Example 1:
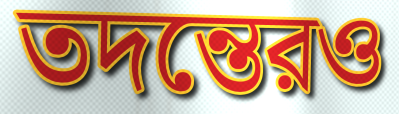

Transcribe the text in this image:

তদন্তেরও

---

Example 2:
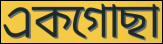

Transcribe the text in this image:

একগোছা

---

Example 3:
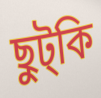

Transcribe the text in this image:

ছুট্কি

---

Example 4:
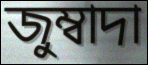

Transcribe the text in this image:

জুম্বাদা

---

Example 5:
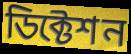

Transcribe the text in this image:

ডিক্টেশন